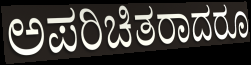
ಅಪರಿಚಿತರಾದರೂ